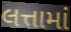
લત્તામાં